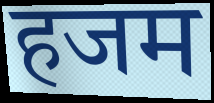
हजम